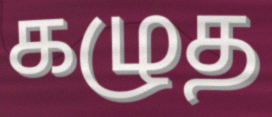
கழுத